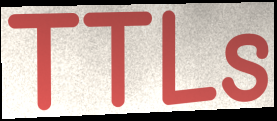
TTLs